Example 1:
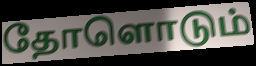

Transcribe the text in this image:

தோளொடும்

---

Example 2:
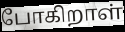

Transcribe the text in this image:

போகிறாள்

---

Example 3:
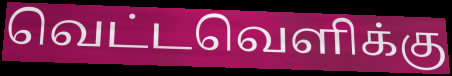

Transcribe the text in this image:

வெட்டவெளிக்கு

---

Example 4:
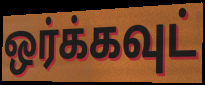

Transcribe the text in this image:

ஒர்க்கவுட்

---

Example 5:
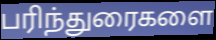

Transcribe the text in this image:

பரிந்துரைகளை